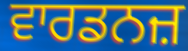
ਵਾਰਡਨਜ਼